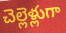
చెల్లెళ్లుగా